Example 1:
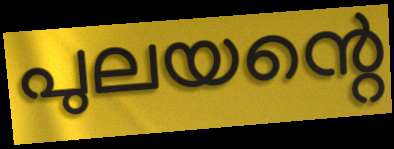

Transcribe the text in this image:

പുലയന്റെ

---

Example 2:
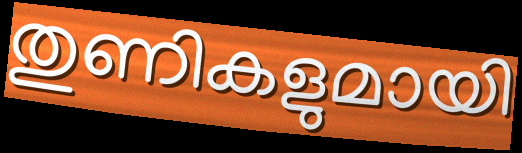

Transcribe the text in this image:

തുണികളുമായി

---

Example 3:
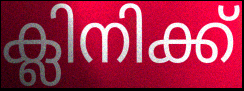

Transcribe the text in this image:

ക്ലിനിക്ക്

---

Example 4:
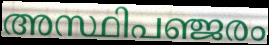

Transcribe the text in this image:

അസ്ഥിപഞ്ജരം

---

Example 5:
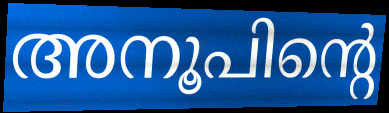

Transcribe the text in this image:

അനൂപിന്റെ